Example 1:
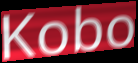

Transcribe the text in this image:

Kobo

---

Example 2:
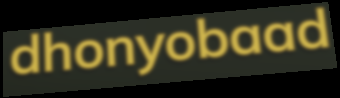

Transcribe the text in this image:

dhonyobaad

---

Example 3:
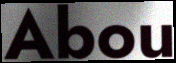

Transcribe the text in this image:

Abou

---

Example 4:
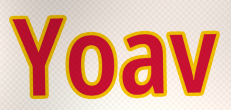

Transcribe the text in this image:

Yoav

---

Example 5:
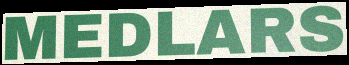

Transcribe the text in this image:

MEDLARS